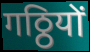
गठ्ठियों